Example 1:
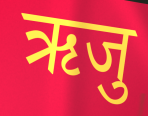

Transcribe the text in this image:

ऋजु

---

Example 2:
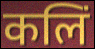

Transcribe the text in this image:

कलिं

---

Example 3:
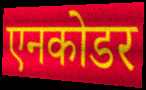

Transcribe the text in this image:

एनकोडर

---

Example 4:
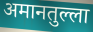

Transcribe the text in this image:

अमानतुल्ला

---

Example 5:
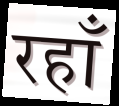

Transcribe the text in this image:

रहाँ